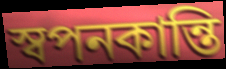
স্বপনকান্তি